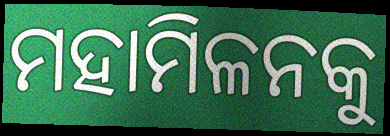
ମହାମିଳନକୁ